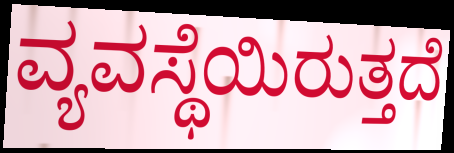
ವ್ಯವಸ್ಥೆಯಿರುತ್ತದೆ